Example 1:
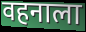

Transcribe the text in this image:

वहनाला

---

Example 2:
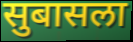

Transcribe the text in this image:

सुबासला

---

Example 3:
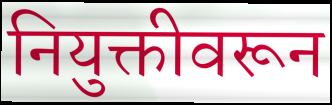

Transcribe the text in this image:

नियुक्तीवरून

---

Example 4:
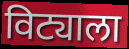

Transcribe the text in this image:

विट्याला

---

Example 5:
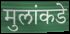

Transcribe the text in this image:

मुलांकडे